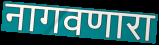
नागवणारा